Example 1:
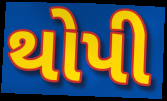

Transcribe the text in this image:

થોપી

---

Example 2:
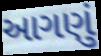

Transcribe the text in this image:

આગણું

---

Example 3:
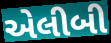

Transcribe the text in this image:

એલીબી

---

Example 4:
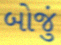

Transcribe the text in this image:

બોજું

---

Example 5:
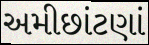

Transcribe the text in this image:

અમીછાંટણાં